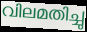
വിലമതിച്ചു